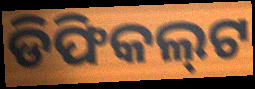
ଡିଫିକଲ୍‌ଟ